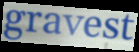
gravest